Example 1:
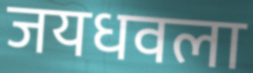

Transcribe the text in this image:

जयधवला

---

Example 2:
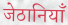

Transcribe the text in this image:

जेठानियाँ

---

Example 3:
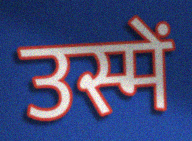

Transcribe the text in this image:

उस्में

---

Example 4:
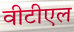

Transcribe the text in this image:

वीटीएल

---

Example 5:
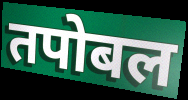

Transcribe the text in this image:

तपोबल